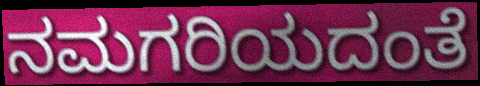
ನಮಗರಿಯದಂತೆ